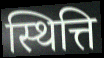
स्थित्ति